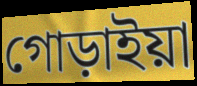
গোড়াইয়া